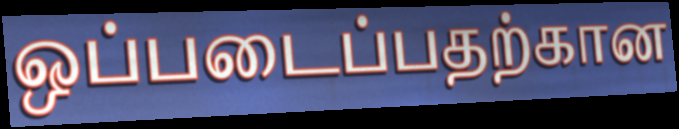
ஒப்படைப்பதற்கான